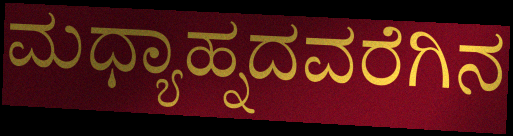
ಮಧ್ಯಾಹ್ನದವರೆಗಿನ